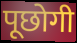
पूछोगी